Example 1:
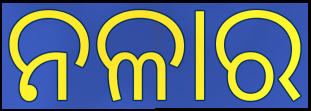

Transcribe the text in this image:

ନଳାର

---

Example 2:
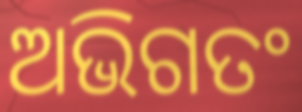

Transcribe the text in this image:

ଅଭିଗତଂ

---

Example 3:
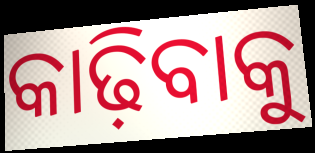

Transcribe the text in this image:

କାଢ଼ିବାକୁ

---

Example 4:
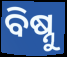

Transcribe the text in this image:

ବିଷ୍ନୁ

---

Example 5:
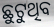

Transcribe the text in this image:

ଛୁଟୁଥିବ